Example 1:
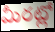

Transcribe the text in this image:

మీరట్లో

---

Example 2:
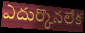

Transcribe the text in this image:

ఎదుర్కొనలేక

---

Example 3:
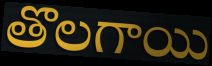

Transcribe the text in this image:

తొలగాయి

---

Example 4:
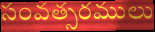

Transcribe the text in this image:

సంవత్సరములు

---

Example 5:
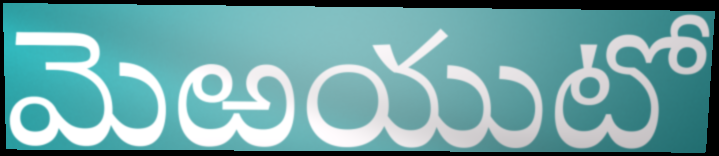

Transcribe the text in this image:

మెఱయుటో